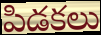
పిడకలు